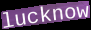
lucknow